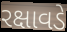
રક્ષાવડે